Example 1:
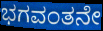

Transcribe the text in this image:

ಭಗವಂತನೇ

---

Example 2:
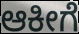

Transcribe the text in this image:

ಆಕೀಗೆ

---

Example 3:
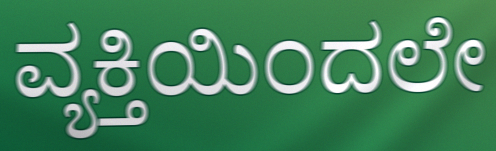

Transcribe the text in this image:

ವ್ಯಕ್ತಿಯಿಂದಲೇ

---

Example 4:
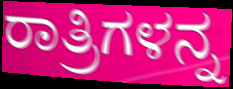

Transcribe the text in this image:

ರಾತ್ರಿಗಳನ್ನ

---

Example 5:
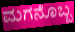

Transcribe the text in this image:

ಮಗನೊಬ್ಬ